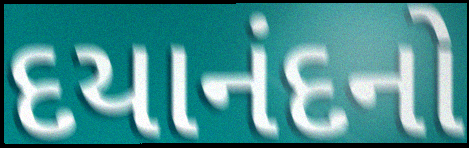
દયાનંદનો